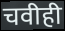
चवीही